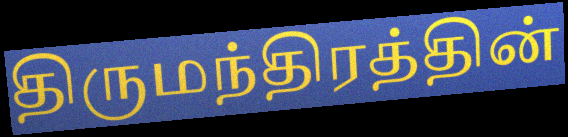
திருமந்திரத்தின்